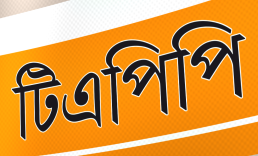
টিএপিপি